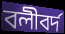
বলীবর্দ